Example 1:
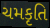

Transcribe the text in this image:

ચમકૃતિ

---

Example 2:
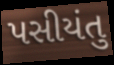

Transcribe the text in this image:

પસીયંતુ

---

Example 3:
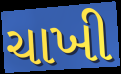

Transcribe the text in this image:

ચાખી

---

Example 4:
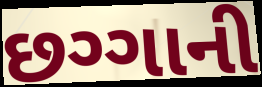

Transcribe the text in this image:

છગ્ગાની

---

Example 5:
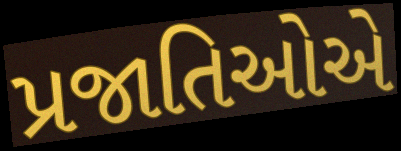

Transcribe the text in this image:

પ્રજાતિઓએ